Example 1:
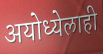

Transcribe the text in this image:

अयोध्येलाही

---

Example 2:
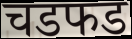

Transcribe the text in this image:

चडफड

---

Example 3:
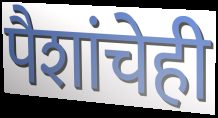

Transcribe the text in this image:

पैशांचेही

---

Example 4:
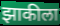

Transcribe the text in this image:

झाकीला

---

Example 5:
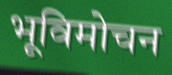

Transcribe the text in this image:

भूविमोचन